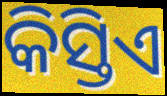
କିସ୍ତିଏ